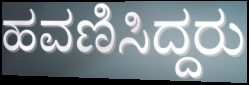
ಹವಣಿಸಿದ್ದರು